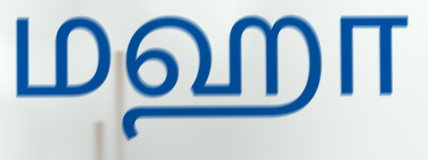
மஹா